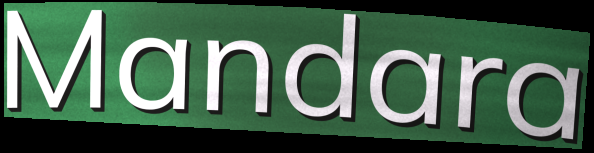
Mandara